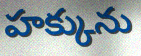
హక్కును